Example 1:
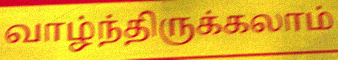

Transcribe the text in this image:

வாழ்ந்திருக்கலாம்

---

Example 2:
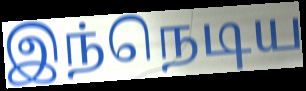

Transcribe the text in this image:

இந்நெடிய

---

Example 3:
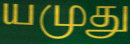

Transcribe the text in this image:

யமுது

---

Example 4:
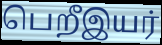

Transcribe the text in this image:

பெறீஇயர்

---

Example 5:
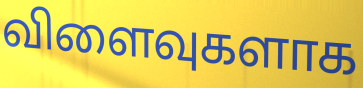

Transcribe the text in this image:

விளைவுகளாக